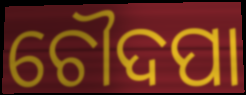
ଚୌଦପା